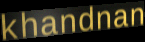
khandnan